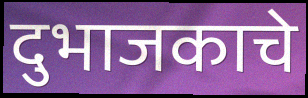
दुभाजकाचे